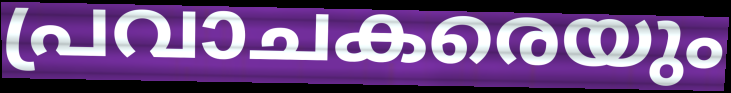
പ്രവാചകരെയും